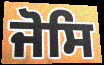
ਜੋਸਿ